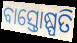
ବାସ୍ତୋଷ୍ପତି